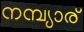
നമ്പ്യാര്